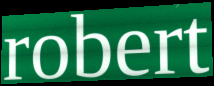
robert